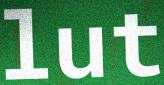
lut